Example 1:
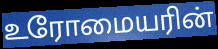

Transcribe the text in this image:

உரோமையரின்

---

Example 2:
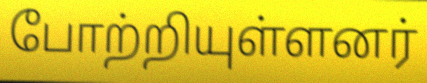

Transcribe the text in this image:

போற்றியுள்ளனர்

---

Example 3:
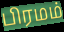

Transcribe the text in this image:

பிரமம்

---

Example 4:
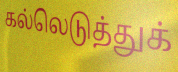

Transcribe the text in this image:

கல்லெடுத்துக்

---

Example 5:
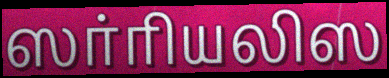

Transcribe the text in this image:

ஸர்ரியலிஸ